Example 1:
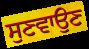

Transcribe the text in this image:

ਸੁਣਵਾਉਣ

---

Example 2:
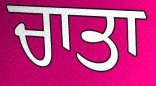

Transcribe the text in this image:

ਚਾਤਾ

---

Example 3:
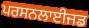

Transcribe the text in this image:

ਪਰਸਨਲਾਈਜਡ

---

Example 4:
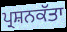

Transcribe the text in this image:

ਪ੍ਰਸ਼ਨਕੱਤਾ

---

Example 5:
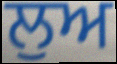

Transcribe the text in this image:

ਲੁਅ